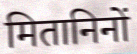
मितानिनों